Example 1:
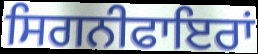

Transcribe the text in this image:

ਸਿਗਨੀਫਾਇਰਾਂ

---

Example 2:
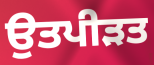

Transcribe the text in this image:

ਉਤਪੀੜਤ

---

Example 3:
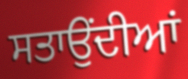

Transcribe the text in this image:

ਸਤਾਉਂਦੀਆਂ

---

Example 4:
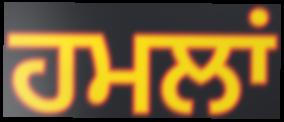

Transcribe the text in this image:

ਹਮਲਾਂ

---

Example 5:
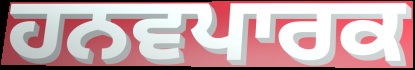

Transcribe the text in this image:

ਹਨਵਪਾਰਕ